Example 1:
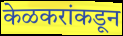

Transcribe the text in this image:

केळकरांकडून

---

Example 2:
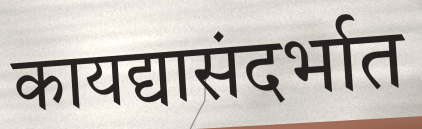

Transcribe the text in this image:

कायद्यासंदर्भात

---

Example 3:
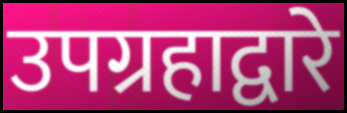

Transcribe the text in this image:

उपग्रहाद्वारे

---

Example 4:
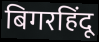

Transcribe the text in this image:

बिगरहिंदू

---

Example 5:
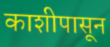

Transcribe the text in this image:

काशीपासून